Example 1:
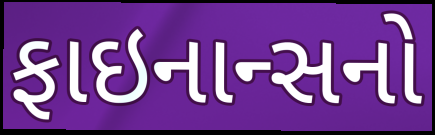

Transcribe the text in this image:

ફાઇનાન્સનો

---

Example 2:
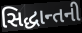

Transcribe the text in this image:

સિદ્ધાન્તની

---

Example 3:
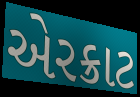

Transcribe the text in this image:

એરક્રાટ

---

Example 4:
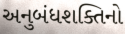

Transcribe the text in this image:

અનુબંધશક્તિનો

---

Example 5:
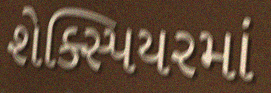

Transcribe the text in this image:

શેક્સ્પિયરમાં